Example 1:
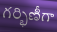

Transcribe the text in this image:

గర్భిణీగా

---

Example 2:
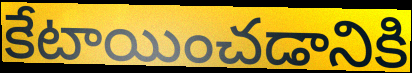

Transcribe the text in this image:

కేటాయించడానికి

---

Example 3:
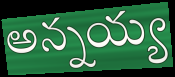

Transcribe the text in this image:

అన్నయ్య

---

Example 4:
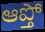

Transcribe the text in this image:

ఆప్తో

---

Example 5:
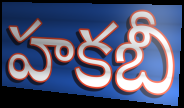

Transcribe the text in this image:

హకబీ